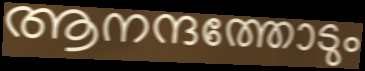
ആനന്ദത്തോടും